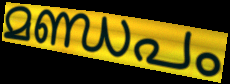
മണ്ഡപം